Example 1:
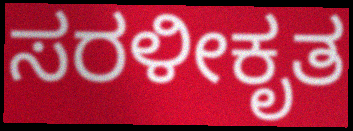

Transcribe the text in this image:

ಸರಳೀಕೃತ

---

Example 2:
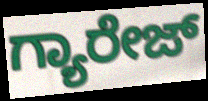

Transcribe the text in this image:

ಗ್ಯಾರೇಜ್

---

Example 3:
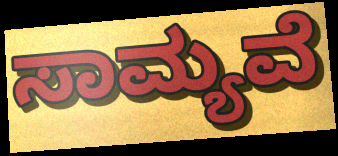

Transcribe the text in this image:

ಸಾಮ್ಯವೆ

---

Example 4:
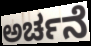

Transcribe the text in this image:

ಅರ್ಚನೆ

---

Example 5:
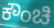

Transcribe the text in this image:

ಕೌಂಚಿ